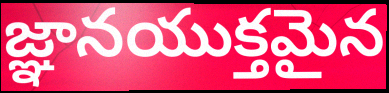
జ్ఞానయుక్తమైన